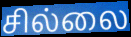
சில்லை